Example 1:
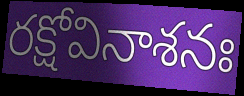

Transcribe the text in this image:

రక్షోవినాశనః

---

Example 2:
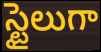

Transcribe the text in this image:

స్టైలుగా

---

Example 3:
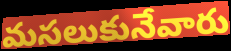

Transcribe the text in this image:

మసలుకునేవారు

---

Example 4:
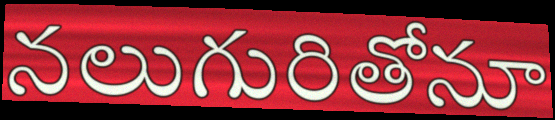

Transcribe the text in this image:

నలుగురితోనూ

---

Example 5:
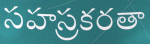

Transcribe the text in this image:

సహస్రకరతా